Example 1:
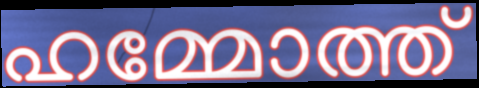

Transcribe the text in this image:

ഹമ്മോത്ത്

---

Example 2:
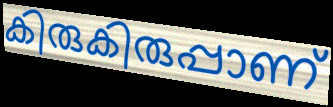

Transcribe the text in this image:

കിരുകിരുപ്പാണ്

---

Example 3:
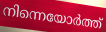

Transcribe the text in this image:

നിന്നെയോർത്ത്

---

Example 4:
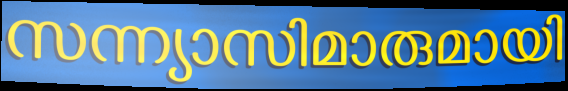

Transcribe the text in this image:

സന്ന്യാസിമാരുമായി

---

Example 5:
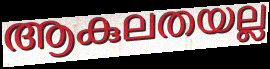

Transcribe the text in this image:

ആകുലതയല്ല